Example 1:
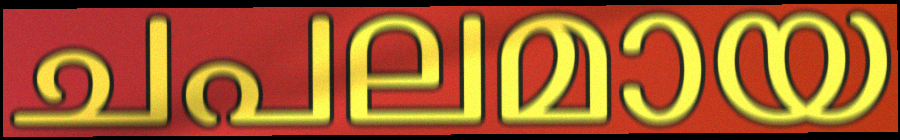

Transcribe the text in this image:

ചപലമായ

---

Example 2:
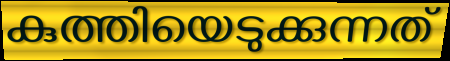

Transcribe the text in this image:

കുത്തിയെടുക്കുന്നത്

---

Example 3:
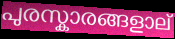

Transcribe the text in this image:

പുരസ്കാരങ്ങളാല്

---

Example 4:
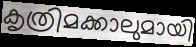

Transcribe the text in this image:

കൃത്രിമക്കാലുമായി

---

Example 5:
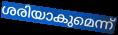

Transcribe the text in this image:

ശരിയാകുമെന്ന്